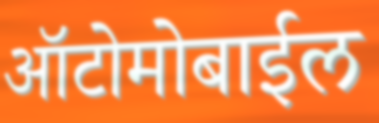
ऑटोमोबाईल